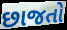
છાજતો